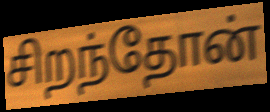
சிறந்தோன்